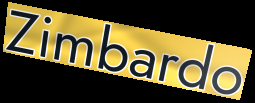
Zimbardo